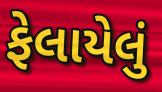
ફેલાયેલું